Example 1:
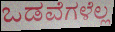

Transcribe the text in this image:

ಒಡವೆಗಳೆಲ್ಲ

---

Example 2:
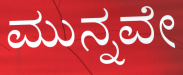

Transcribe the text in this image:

ಮುನ್ನವೇ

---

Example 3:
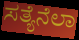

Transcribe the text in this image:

ಸತ್ಯೆನೆಲಾ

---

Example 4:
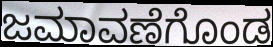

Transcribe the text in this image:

ಜಮಾವಣೆಗೊಂಡ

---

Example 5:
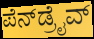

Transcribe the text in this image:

ಪೆನ್‌ಡ್ರೈವ್